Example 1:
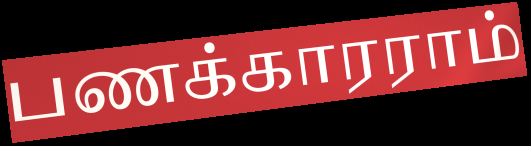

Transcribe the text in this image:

பணக்காரராம்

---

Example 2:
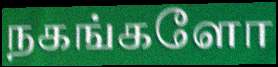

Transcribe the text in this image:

நகங்களோ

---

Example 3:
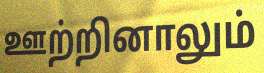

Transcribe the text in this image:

ஊற்றினாலும்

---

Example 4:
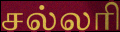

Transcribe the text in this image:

சல்லரி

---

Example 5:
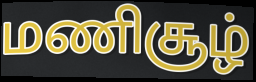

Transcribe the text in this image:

மணிசூழ்